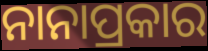
ନାନାପ୍ରକାର